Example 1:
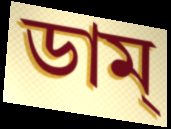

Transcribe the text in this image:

ডাম্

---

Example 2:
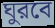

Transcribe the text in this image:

ঘুরবে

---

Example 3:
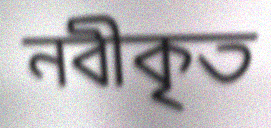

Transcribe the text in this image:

নবীকৃত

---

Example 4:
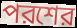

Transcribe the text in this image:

পরশের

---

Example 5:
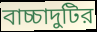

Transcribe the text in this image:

বাচ্চাদুটির